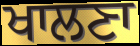
ਖਾਲਣਾ